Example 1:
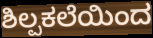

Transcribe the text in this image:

ಶಿಲ್ಪಕಲೆಯಿಂದ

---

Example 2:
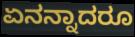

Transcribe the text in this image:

ಏನನ್ನಾದರೂ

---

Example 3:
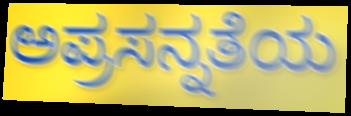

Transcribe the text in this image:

ಅಪ್ರಸನ್ನತೆಯ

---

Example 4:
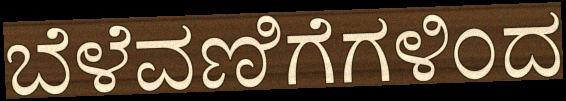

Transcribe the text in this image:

ಬೆಳೆವಣಿಗೆಗಳಿಂದ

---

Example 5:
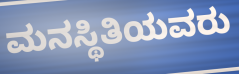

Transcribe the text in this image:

ಮನಸ್ಥಿತಿಯವರು